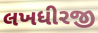
લખધીરજી